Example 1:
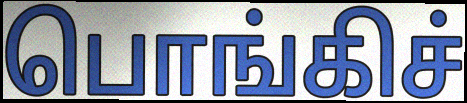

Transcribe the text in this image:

பொங்கிச்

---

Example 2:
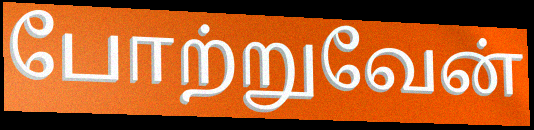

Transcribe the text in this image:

போற்றுவேன்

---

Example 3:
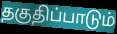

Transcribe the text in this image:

தகுதிப்பாடும்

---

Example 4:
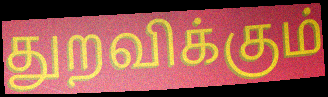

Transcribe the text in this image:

துறவிக்கும்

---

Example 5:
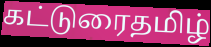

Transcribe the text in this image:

கட்டுரைதமிழ்